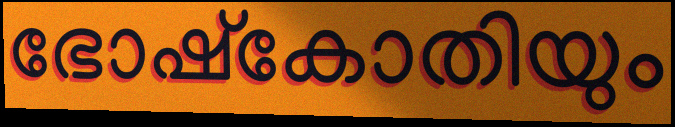
ഭോഷ്കോതിയും